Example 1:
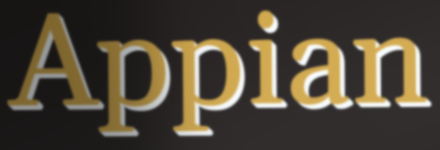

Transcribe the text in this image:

Appian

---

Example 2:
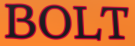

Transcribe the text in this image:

BOLT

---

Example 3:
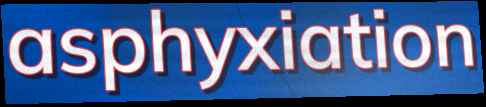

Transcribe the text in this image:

asphyxiation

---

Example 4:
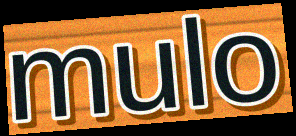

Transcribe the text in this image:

mulo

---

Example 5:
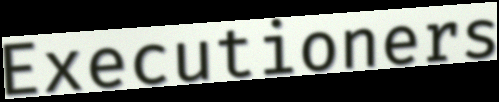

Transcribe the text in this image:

Executioners